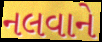
નલવાને